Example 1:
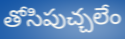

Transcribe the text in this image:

తోసిపుచ్చలేం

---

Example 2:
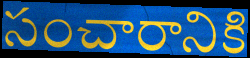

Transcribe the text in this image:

సంచారానికి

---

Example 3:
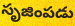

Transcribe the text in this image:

సృజింపడు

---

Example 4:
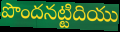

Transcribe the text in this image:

పొందనట్టిదియు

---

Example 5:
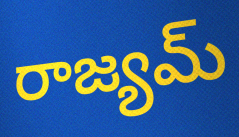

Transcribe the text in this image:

రాజ్యమ్